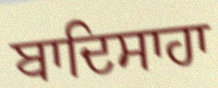
ਬਾਦਿਸਾਹਾ